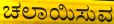
ಚಲಾಯಿಸುವ